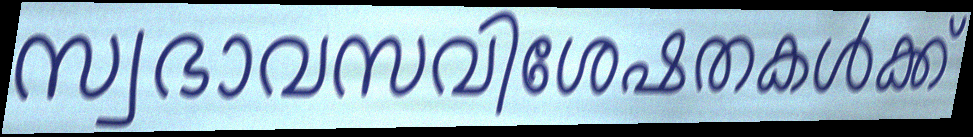
സ്വഭാവസവിശേഷതകൾക്ക്